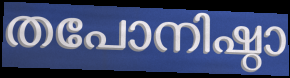
തപോനിഷ്ഠാ